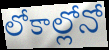
లోకాల్లోనో